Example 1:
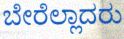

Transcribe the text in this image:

ಬೇರೆಲ್ಲಾದರು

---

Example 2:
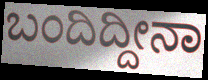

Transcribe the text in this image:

ಬಂದಿದ್ದೀನಾ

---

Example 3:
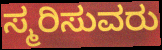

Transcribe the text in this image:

ಸ್ಮರಿಸುವರು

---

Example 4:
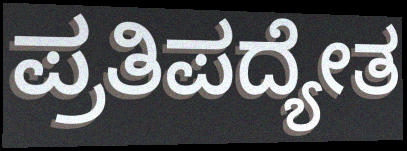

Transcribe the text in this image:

ಪ್ರತಿಪದ್ಯೇತ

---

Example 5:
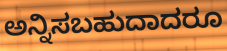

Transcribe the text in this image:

ಅನ್ನಿಸಬಹುದಾದರೂ